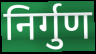
निर्गुण